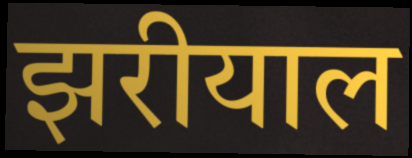
झरीयाल